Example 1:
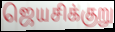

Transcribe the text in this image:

ஜெயசிக்குறு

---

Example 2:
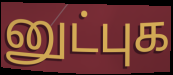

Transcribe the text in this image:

னுட்புக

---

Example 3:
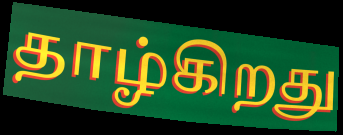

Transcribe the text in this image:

தாழ்கிறது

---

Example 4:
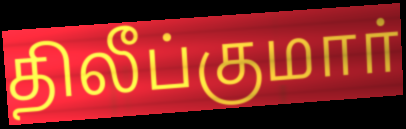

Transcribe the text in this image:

திலீப்குமார்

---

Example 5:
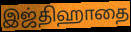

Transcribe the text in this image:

இஜ்திஹாதை